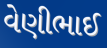
વેણીભાઈ